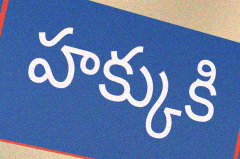
హక్కుకి